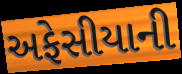
અફેસીયાની